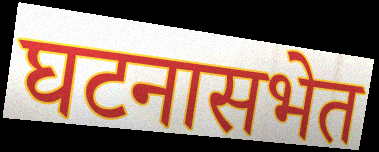
घटनासभेत